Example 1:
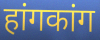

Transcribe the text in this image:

हांगकांग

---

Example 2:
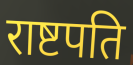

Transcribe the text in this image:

राष्टपति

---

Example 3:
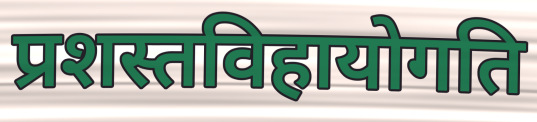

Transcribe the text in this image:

प्रशस्तविहायोगति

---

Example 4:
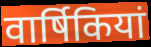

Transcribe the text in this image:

वार्षिकियां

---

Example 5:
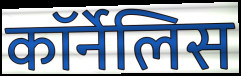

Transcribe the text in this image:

कॉर्नेलिस